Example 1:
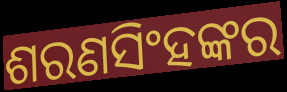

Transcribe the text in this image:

ଶରଣସିଂହଙ୍କର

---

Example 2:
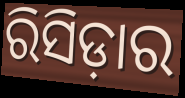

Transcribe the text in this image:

ରିସିଡ଼ାର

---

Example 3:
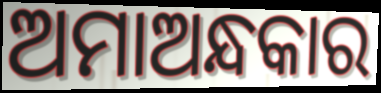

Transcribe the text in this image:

ଅମାଅନ୍ଧକାର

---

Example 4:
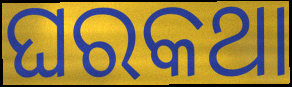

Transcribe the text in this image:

ଘରକଥା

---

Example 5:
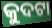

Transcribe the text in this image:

କୁଦଟା